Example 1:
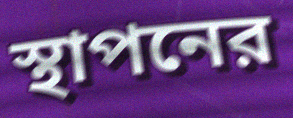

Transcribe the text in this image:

স্থাপনের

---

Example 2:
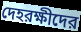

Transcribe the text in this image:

দেহরক্ষীদের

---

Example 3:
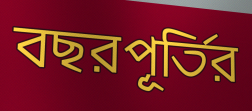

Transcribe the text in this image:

বছরপূর্তির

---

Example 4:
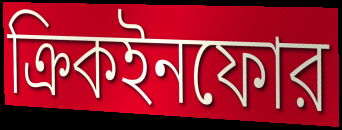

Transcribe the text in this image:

ক্রিকইনফোর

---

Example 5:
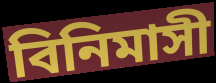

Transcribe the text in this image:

বিনিমাসী